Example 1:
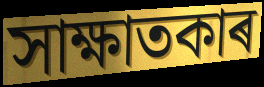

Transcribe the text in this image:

সাক্ষাতকাৰ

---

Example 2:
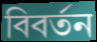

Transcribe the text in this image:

বিবৰ্তন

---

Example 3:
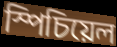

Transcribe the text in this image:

স্পিচিয়েল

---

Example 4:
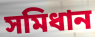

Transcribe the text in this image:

সমিধান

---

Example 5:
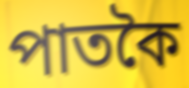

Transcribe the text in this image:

পাতকৈ